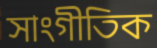
সাংগীতিক